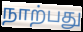
நாற்பது